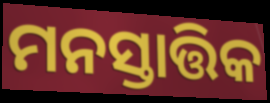
ମନସ୍ତାତ୍ତିକ